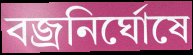
বজ্রনির্ঘোষে